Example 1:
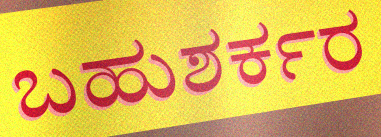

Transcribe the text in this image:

ಬಹುಶರ್ಕರ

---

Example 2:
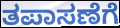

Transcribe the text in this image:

ತಪಾಸಣೆಗೆ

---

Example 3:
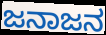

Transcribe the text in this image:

ಜನಾಜನ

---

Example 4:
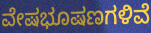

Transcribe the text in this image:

ವೇಷಭೂಷಣಗಳಿವೆ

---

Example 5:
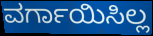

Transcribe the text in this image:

ವರ್ಗಾಯಿಸಿಲ್ಲ